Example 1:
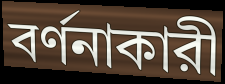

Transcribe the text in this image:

বর্ণনাকারী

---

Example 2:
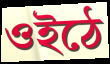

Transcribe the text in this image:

ওইঠে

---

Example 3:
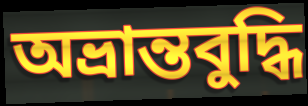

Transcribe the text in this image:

অভ্রান্তবুদ্ধি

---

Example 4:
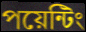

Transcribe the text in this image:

পয়েন্টিং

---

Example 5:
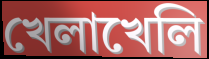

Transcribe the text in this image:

খেলাখেলি